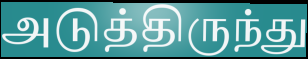
அடுத்திருந்து